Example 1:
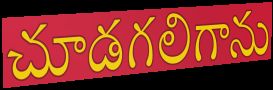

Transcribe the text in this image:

చూడగలిగాను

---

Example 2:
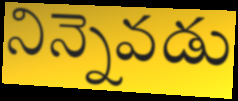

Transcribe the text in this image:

నిన్నెవడు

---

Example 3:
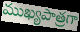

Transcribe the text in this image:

ముఖ్యపాత్రగా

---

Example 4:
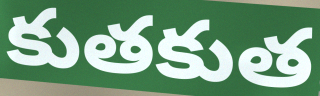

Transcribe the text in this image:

కుతకుత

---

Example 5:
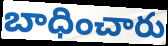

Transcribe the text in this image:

బాధించారు